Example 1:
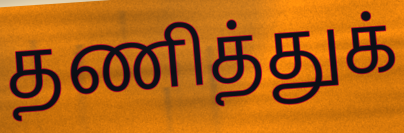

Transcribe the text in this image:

தணித்துக்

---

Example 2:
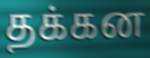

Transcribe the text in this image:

தக்கன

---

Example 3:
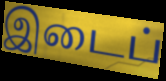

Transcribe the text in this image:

இடைப்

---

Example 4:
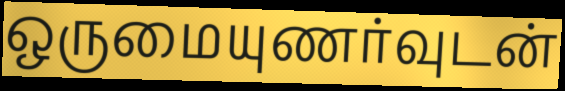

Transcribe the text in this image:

ஒருமையுணர்வுடன்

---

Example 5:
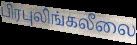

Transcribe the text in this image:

பிரபுலிங்கலீலை